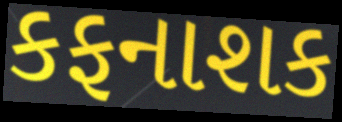
કફનાશક